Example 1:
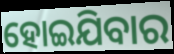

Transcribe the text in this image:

ହୋଇଯିବାର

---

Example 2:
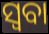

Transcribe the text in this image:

ସ୍ୱବା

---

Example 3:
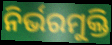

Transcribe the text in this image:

ନିର୍ଭରମୁକ୍ତି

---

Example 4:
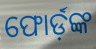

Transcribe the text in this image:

ଫୋର୍ଡ଼ଙ୍କ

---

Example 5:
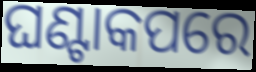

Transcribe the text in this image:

ଘଣ୍ଟାକପରେ